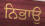
ਨਿਭਾਉ